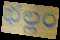
భల్లం